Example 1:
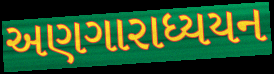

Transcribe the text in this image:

અણગારાધ્યયન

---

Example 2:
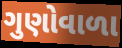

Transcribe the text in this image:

ગુણોવાળા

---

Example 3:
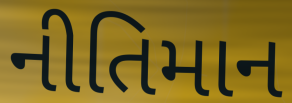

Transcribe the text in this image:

નીતિમાન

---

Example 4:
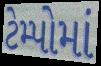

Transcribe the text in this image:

ટેમ્પોમાં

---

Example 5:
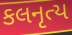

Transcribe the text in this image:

કલનૃત્ય